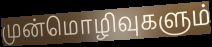
முன்மொழிவுகளும்